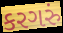
કરગરું